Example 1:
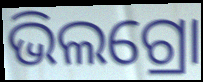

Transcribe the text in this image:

ଭିଲଗ୍ରୋ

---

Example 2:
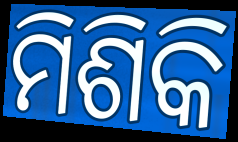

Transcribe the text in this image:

ମିଶିକି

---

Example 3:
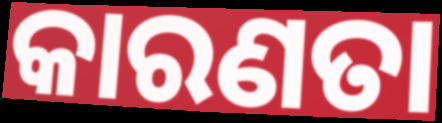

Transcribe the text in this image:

କାରଣତା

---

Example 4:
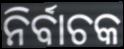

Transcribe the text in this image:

ନିର୍ବାଚକ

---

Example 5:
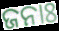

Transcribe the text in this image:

ଜନାଃ